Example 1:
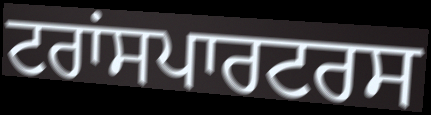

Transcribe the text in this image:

ਟਰਾਂਸਪਾਰਟਰਸ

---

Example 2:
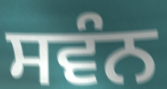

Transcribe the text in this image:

ਸਵੰਨ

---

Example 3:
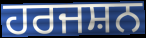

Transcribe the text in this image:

ਹਰਜਸ਼ਨ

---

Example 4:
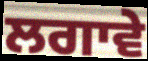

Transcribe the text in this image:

ਲਗਾਵੇ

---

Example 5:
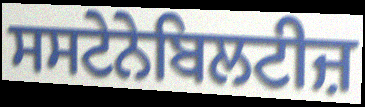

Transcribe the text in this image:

ਸਸਟੇਨੇਬਿਲਟੀਜ਼